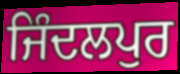
ਜਿੰਦਲਪੁਰ